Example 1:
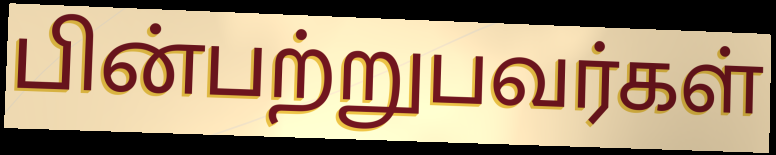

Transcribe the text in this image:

பின்பற்றுபவர்கள்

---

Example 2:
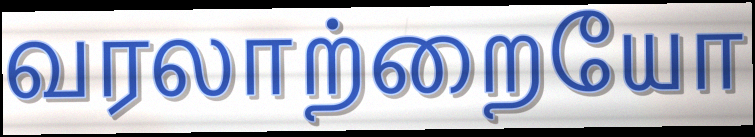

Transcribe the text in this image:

வரலாற்றையோ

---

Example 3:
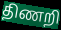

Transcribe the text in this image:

திணறி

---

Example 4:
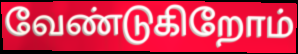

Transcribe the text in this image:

வேண்டுகிறோம்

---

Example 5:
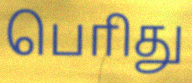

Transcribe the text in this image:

பெரிது